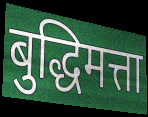
बुद्धिमत्ता